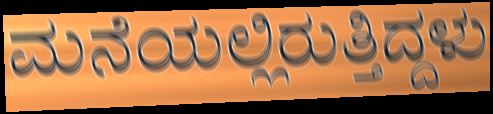
ಮನೆಯಲ್ಲಿರುತ್ತಿದ್ದಳು